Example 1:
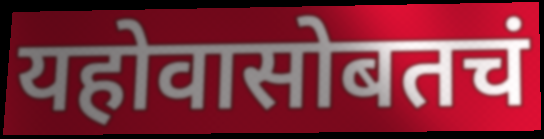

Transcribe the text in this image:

यहोवासोबतचं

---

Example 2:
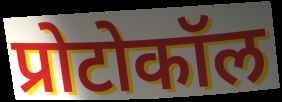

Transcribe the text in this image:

प्रोटोकॉल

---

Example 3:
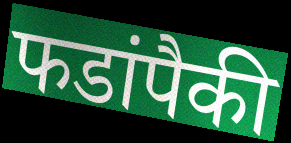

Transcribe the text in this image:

फडांपैकी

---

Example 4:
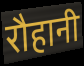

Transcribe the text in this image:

रौहानी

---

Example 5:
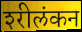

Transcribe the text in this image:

श्रीलंकन